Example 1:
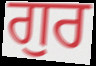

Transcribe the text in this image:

ਗੁਰ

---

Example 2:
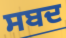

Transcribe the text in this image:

ਸਬਦ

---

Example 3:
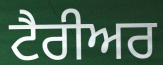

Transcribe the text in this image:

ਟੈਰੀਅਰ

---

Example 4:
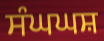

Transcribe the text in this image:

ਸੰਘਘਸ਼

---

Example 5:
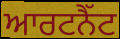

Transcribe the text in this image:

ਆਰਟਨੈੱਟ